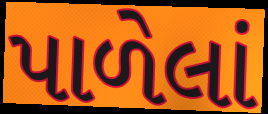
પાળેલાં